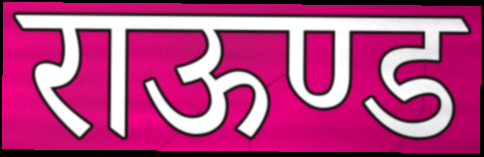
राऊण्ड